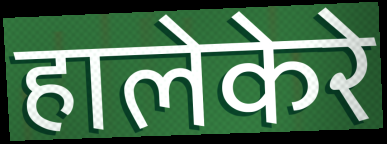
हालेकेरे